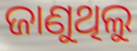
ଜାଣୁଥିଲୁ